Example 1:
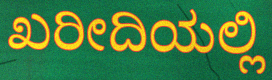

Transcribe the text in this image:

ಖರೀದಿಯಲ್ಲಿ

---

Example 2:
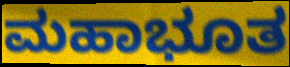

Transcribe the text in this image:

ಮಹಾಭೂತ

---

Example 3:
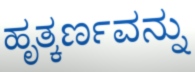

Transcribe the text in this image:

ಹೃತ್ಕರ್ಣವನ್ನು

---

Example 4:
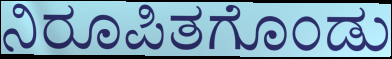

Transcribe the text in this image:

ನಿರೂಪಿತಗೊಂಡು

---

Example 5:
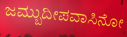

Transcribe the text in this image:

ಜಮ್ಬುದೀಪವಾಸಿನೋ